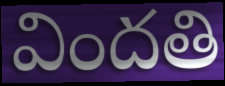
విందతి